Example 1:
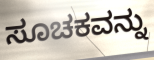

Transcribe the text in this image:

ಸೂಚಕವನ್ನು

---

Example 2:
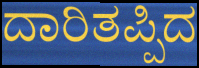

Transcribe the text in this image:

ದಾರಿತಪ್ಪಿದ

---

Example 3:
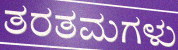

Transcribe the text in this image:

ತರತಮಗಳು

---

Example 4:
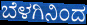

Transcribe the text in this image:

ಬೆಳಗಿನಿಂದ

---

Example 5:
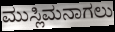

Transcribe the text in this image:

ಮುಸ್ಲಿಮನಾಗಲು